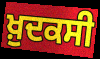
ਖ਼ੁਦਕਸੀ